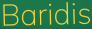
Baridis